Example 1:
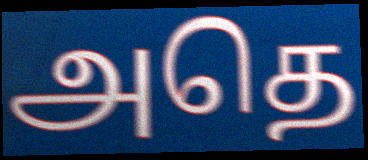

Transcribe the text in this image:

அதெ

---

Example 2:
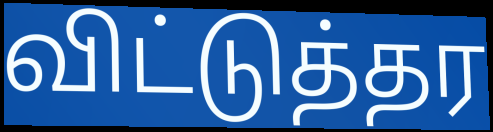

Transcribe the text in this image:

விட்டுத்தர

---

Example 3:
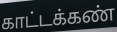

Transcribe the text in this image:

காட்டக்கண்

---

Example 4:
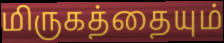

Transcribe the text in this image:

மிருகத்தையும்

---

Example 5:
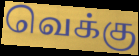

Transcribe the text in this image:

வெக்கு